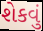
શેકવું